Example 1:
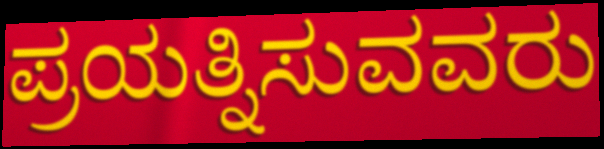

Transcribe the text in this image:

ಪ್ರಯತ್ನಿಸುವವರು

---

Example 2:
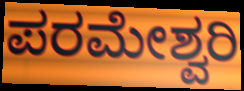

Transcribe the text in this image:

ಪರಮೇಶ್ವರಿ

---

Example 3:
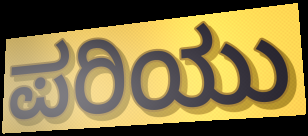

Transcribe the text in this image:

ಪರಿಯು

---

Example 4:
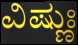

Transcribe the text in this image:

ವಿಷ್ಣುಃ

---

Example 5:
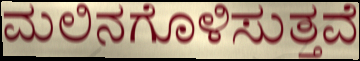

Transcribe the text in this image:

ಮಲಿನಗೊಳಿಸುತ್ತವೆ